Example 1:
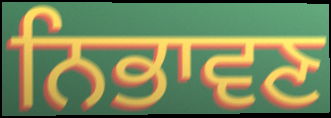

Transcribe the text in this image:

ਨਿਭਾਵਣ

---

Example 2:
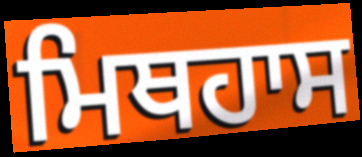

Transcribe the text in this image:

ਮਿਥਹਾਸ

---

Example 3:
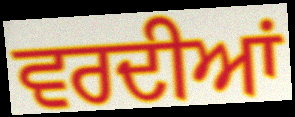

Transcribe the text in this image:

ਵਰਦੀਆਂ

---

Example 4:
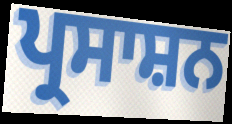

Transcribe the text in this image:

ਪ੍ਰਸਾਸ਼ਨ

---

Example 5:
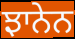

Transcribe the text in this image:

ਝਾਨੇਨ